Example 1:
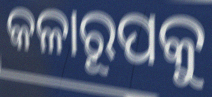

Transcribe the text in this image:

କଳାରୂପକୁ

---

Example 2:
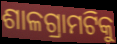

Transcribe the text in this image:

ଶାଳଗ୍ରାମଟିକୁ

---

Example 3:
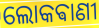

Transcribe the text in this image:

ଲୋକଵାଣୀ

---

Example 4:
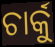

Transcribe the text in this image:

ଚାର୍କୁ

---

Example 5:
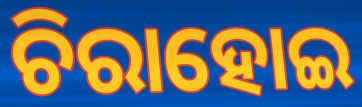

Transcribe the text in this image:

ଚିରାହୋଇ